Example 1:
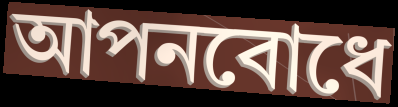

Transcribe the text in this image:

আপনবোধে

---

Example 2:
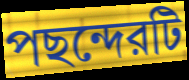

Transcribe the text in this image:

পছন্দেরটি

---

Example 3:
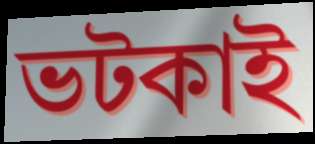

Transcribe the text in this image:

ভটকাই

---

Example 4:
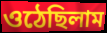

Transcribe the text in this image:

ওঠেছিলাম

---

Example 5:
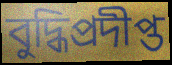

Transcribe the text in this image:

বুদ্ধিপ্রদীপ্ত